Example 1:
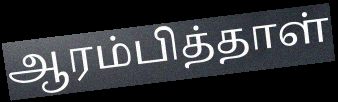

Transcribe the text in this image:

ஆரம்பித்தாள்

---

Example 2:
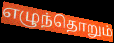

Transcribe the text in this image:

எழுந்தொறும்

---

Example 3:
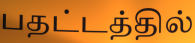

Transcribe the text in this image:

பதட்டத்தில்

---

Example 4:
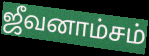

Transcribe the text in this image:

ஜீவனாம்சம்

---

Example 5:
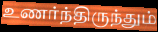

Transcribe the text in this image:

உணர்ந்திருந்தும்